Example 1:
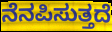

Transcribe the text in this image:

ನೆನಪಿಸುತ್ತದೆ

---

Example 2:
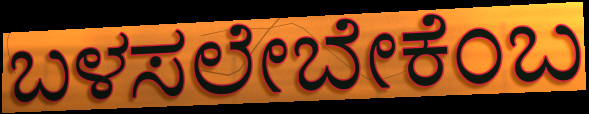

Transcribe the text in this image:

ಬಳಸಲೇಬೇಕೆಂಬ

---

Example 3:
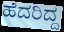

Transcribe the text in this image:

ಹೆದರಿದ್ದ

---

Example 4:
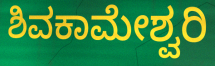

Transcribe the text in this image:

ಶಿವಕಾಮೇಶ್ವರಿ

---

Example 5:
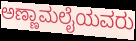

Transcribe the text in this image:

ಅಣ್ಣಾಮಲೈಯವರು